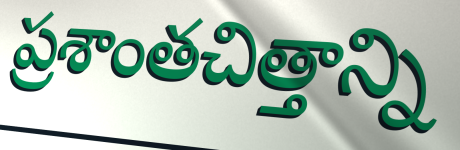
ప్రశాంతచిత్తాన్ని